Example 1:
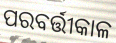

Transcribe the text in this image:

ପରବର୍ତ୍ତୀକାଳ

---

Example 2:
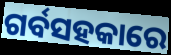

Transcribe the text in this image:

ଗର୍ବସହକାରେ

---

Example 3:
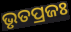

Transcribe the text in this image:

ଭୃତପ୍ରଜଃ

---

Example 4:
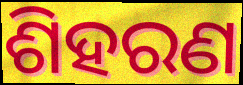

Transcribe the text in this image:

ଶିହରଣ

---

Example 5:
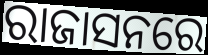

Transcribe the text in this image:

ରାଜାସନରେ